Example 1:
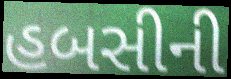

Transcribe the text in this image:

હબસીની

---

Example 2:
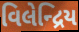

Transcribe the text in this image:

વિલેન્દ્રિય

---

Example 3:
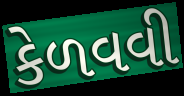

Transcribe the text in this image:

કેળવવી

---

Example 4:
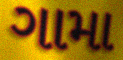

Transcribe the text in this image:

ગામા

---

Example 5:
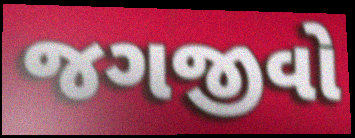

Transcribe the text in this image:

જગજીવો